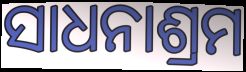
ସାଧନାଶ୍ରମ